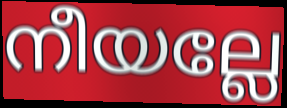
നീയല്ലേ